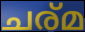
ചര്മ